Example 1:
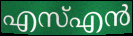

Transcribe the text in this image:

എസ്എൻ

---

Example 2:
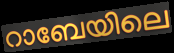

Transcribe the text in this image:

റാബേയിലെ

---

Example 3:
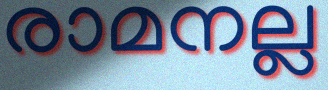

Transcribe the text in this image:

രാമനല്ല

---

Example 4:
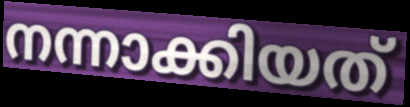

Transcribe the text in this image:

നന്നാക്കിയത്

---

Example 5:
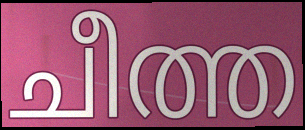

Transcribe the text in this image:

ചീത്ത